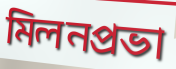
মিলনপ্রভা